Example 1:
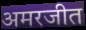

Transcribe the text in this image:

अमरजीत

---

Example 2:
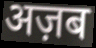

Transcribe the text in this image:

अज़ब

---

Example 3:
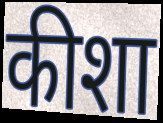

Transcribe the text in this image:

कीशा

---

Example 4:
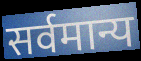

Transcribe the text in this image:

सर्वमान्य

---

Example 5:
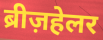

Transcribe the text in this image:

ब्रीज़हेलर